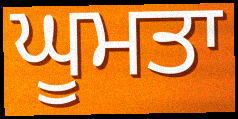
ਘੂਮਤਾ